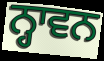
ਨ੍ਹਾਵਨ